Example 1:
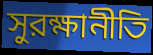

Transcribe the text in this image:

সুরক্ষানীতি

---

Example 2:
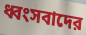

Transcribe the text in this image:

ধ্বংসবাদের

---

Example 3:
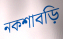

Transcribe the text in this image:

নকশাবড়ি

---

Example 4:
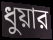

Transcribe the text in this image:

ধুয়ার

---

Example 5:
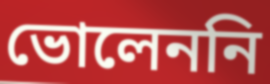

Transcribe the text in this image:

ভোলেননি